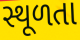
સ્થૂળતા